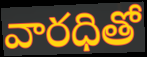
వారధితో